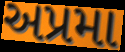
અપ્રમા